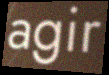
agir